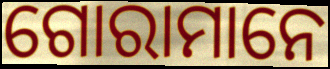
ଗୋରାମାନେ